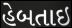
હેબતાઇ